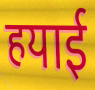
हयाई